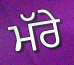
ਮੱਰੇ